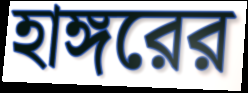
হাঙ্গরের